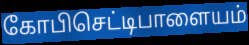
கோபிசெட்டிபாளையம்